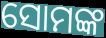
ସୋମଙ୍କ